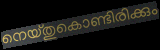
നെയ്തുകൊണ്ടിരിക്കും